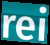
rei